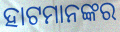
ହାଟମାନଙ୍କର